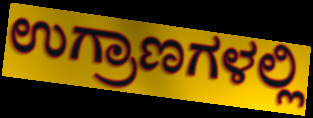
ಉಗ್ರಾಣಗಳಲ್ಲಿ